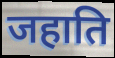
जहाति